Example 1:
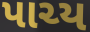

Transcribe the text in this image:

પાચ્ય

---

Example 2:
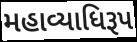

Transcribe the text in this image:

મહાવ્યાધિરૂપ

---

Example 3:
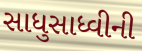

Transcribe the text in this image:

સાધુસાધ્વીની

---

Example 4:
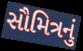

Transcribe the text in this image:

સૌમિત્રનું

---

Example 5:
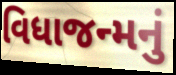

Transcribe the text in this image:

વિધાજન્મનું